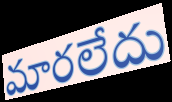
మారలేదు